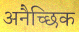
अनैच्छिक